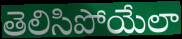
తెలిసిపోయేలా